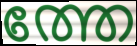
ത്തേ